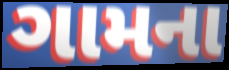
ગામના